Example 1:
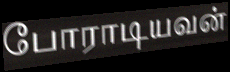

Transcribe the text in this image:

போராடியவன்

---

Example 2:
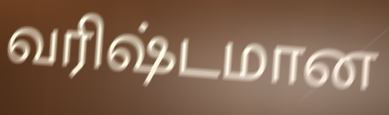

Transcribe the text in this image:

வரிஷ்டமான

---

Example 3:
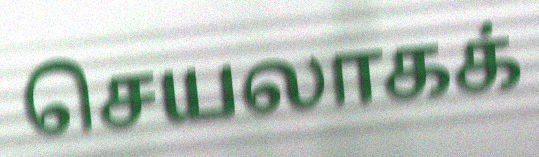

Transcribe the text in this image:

செயலாகக்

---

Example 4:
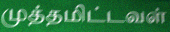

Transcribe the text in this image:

முத்தமிட்டவள்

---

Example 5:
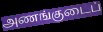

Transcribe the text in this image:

அணங்குடைப்